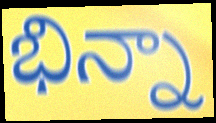
భిన్నా